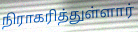
நிராகரித்துள்ளார்